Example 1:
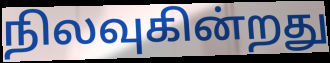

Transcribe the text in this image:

நிலவுகின்றது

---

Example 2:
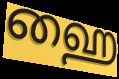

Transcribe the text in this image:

ஹை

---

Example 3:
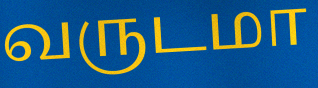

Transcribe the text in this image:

வருடமா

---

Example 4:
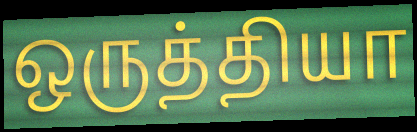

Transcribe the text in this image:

ஒருத்தியா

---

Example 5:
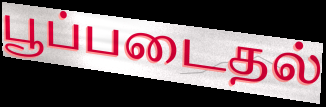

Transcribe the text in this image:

பூப்படைதல்